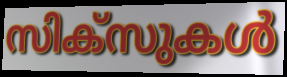
സിക്സുകൾ